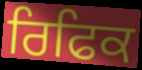
ਰਿਫਿਕ